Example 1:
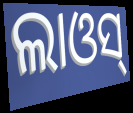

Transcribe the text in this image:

ଲାଓସ୍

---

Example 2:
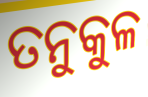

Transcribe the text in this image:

ତନୁକୁଳ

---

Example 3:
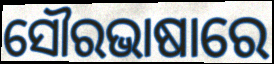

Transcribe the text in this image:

ସୌରଭାଷାରେ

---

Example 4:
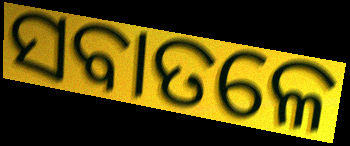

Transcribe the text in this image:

ସବାତଳେ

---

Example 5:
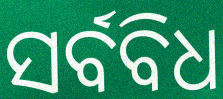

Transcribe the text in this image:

ସର୍ବବିଧ